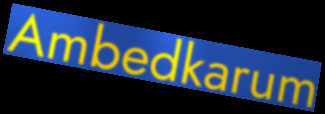
Ambedkarum